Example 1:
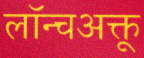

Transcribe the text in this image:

लॉन्चअक्तू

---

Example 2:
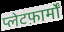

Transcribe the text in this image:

प्लेटफ़ार्मों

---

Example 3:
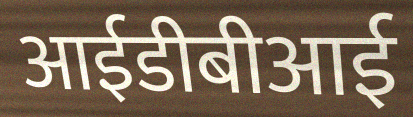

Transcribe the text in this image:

आईडीबीआई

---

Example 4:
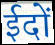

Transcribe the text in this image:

ईदों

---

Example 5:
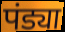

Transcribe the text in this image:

पंड्या